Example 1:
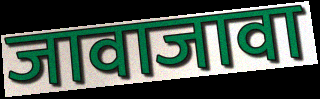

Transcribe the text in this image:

जावाजावा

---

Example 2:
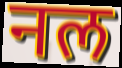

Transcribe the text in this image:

नल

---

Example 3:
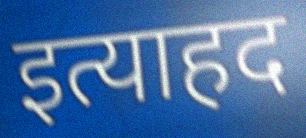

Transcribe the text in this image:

इत्याहद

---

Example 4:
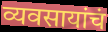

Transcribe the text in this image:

व्यवसायांचं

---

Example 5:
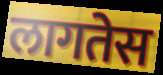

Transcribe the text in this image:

लागतेस